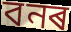
বনৰ